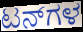
ಟನ್‌ಗಳ